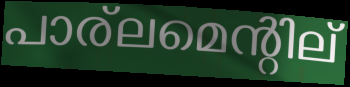
പാര്ലമെന്റില്